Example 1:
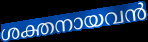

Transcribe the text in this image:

ശക്തനായവൻ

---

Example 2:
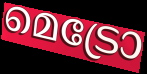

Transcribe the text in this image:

മെട്രോ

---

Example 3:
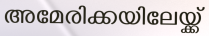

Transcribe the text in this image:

അമേരിക്കയിലേയ്ക്ക്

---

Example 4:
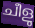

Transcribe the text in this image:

ചീളു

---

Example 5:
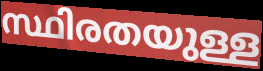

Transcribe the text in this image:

സ്ഥിരതയുള്ള